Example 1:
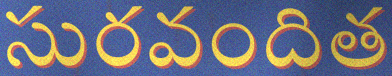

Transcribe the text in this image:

సురవందిత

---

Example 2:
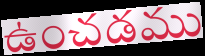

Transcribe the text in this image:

ఉంచడము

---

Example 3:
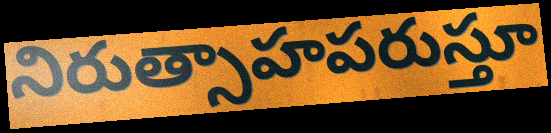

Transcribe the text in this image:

నిరుత్సాహపరుస్తూ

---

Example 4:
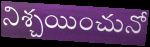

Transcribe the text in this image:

నిశ్చయించునో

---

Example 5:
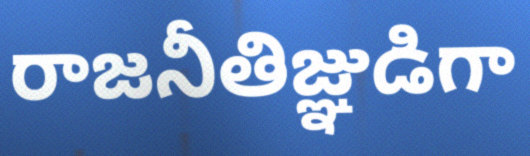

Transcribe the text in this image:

రాజనీతిజ్ఞుడిగా